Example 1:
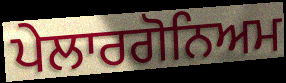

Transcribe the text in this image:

ਪੇਲਾਰਗੋਨਿਅਮ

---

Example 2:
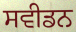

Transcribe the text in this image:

ਸਵੀਡਨ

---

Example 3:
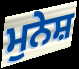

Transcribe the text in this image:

ਮੁਨੇਸ਼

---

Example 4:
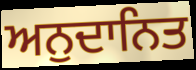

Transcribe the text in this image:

ਅਨੁਦਾਨਿਤ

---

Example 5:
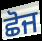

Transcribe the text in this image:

ਛੋਜ